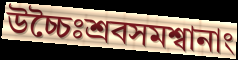
উচ্চৈঃশ্রবসমশ্বানাং